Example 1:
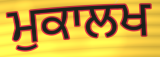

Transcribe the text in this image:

ਮੁਕਾਲਖ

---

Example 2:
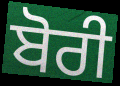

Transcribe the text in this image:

ਬੋਰੀ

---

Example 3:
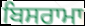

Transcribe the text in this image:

ਬਿਸਰਾਮਾ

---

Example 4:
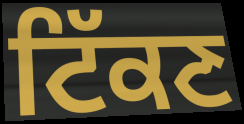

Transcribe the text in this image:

ਟਿੱਕਣ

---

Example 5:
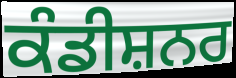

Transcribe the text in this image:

ਕੰਡੀਸ਼ਨਰ